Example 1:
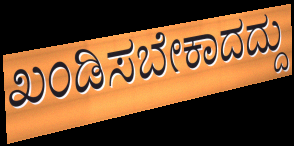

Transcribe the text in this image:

ಖಂಡಿಸಬೇಕಾದದ್ದು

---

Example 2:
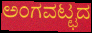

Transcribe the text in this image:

ಅಂಗವಟ್ಟದ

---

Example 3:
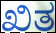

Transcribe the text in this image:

ಖಿತ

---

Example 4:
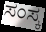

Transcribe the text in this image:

ಸಂಸ್ಕ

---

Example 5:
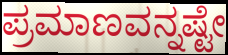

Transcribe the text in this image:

ಪ್ರಮಾಣವನ್ನಷ್ಟೇ